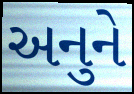
અનુને